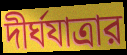
দীর্ঘযাত্রার